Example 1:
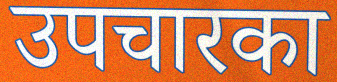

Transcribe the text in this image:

उपचारका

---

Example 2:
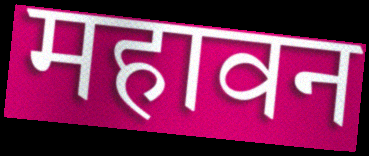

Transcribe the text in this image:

महावन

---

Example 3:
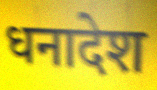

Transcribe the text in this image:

धनादेश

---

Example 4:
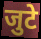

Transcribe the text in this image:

जुटे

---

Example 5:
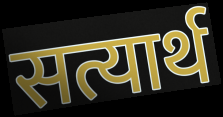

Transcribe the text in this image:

सत्यार्थ